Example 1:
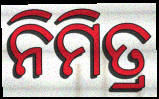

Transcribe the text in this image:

ନିମିତ୍ର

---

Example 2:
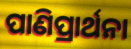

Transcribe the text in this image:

ପାଣିପ୍ରାର୍ଥନା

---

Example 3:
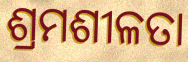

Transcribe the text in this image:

ଶ୍ରମଶୀଳତା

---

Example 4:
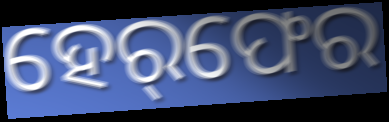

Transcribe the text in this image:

ହେର୍‌ଫେର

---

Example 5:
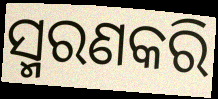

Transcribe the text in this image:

ସ୍ମରଣକରି